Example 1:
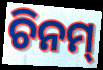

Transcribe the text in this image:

ଚିନମ୍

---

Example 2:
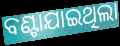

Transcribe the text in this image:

ବଣ୍ଟାଯାଇଥିଲା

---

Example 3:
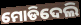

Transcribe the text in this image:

ମୋଡିଦେଲି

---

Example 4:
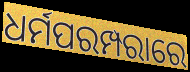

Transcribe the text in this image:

ଧର୍ମପରମ୍ପରାରେ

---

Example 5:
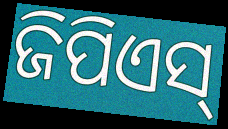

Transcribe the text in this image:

ଜିପିଏସ୍